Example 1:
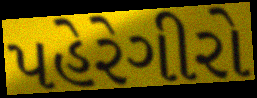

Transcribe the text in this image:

પહેરેગીરો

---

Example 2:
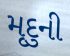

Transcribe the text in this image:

મૃદુની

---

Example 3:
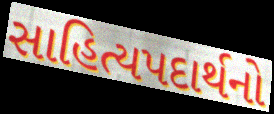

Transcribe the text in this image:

સાહિત્યપદાર્થનો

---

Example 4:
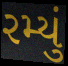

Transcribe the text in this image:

રમ્યું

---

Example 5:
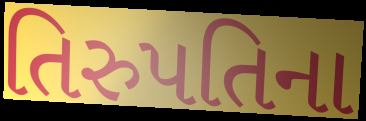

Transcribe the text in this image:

તિરુપતિના